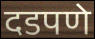
दडपणे